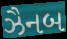
ઝૈનબ